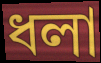
ধলা